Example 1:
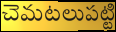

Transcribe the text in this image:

చెమటలుపట్టి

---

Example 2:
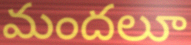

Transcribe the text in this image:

మందలూ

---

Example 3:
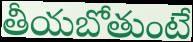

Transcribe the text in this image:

తీయబోతుంటే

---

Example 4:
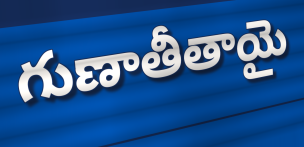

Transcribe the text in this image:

గుణాతీతాయై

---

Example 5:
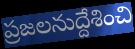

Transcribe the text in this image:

ప్రజలనుద్దేశించి